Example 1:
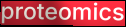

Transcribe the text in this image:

proteomics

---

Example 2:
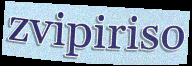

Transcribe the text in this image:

zvipiriso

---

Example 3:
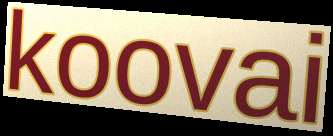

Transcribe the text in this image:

koovai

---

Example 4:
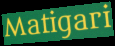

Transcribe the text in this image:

Matigari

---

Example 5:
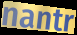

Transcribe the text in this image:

nantr